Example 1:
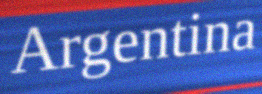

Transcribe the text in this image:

Argentina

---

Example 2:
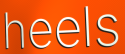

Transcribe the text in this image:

heels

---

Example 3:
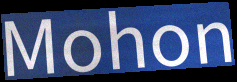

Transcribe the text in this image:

Mohon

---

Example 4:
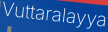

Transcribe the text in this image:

Vuttaralayya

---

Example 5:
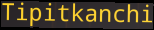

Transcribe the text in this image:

Tipitkanchi